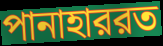
পানাহাররত